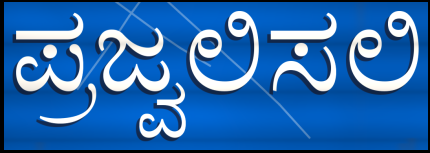
ಪ್ರಜ್ವಲಿಸಲಿ